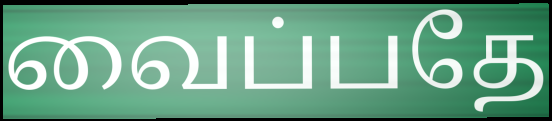
வைப்பதே